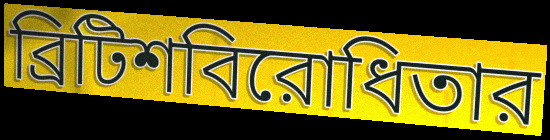
ব্রিটিশবিরোধিতার